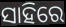
ସାହିରେ